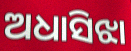
ଅଧାସିଝା